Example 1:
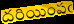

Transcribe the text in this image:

దరియింపఁ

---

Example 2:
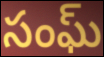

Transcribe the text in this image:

సంఘ్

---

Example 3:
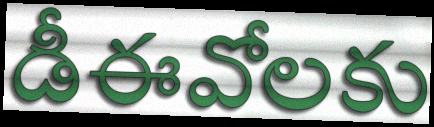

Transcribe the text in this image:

డీఈవోలకు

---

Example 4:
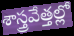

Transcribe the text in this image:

శాస్త్రవేత్తల్లో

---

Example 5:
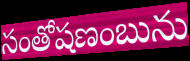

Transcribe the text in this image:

సంతోషణంబును